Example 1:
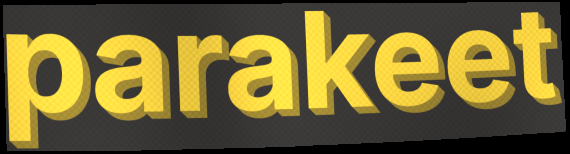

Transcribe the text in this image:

parakeet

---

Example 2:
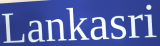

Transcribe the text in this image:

Lankasri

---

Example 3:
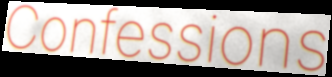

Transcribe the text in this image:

Confessions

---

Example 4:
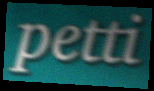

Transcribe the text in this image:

petti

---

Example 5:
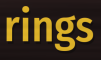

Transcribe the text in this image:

rings